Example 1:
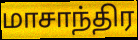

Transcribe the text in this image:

மாசாந்திர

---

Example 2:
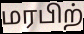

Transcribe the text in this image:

மரபிற்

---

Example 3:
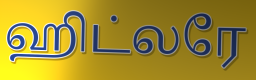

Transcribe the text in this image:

ஹிட்லரே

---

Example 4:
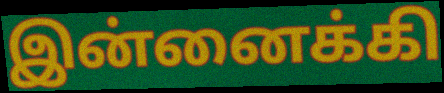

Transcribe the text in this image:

இன்னைக்கி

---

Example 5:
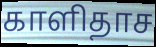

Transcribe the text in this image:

காளிதாச